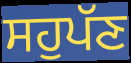
ਸਹੁਪੱਣ